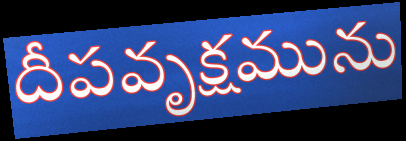
దీపవృక్షమును